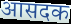
आसदक